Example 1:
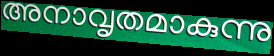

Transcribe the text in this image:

അനാവൃതമാകുന്നു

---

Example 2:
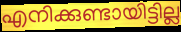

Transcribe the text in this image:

എനിക്കുണ്ടായിട്ടില്ല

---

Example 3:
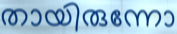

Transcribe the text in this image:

തായിരുന്നോ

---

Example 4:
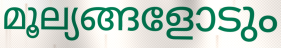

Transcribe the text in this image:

മൂല്യങ്ങളോടും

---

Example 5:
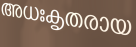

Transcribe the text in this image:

അധഃകൃതരായ